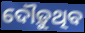
ଦୌଡ଼ୁଥିବ